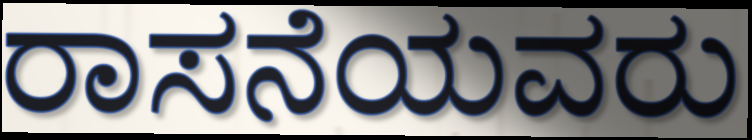
ರಾಸನೆಯವರು